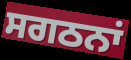
ਸਗਠਨਾਂ